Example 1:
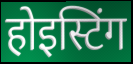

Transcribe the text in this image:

होइस्टिंग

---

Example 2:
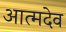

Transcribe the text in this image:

आत्मदेव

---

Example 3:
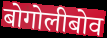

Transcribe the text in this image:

बोगोलीबोव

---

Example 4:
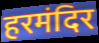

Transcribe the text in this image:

हरमंदिर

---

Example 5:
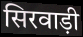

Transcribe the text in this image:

सिरवाड़ी